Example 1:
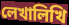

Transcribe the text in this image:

লেখালিখি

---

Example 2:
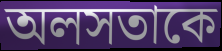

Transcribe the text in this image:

অলসতাকে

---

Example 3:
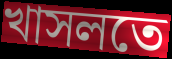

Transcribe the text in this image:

খাসলতে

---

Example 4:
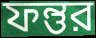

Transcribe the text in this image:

ফন্তুর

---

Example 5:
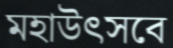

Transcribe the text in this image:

মহাউৎসবে